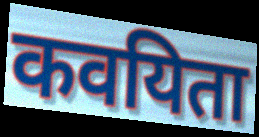
कवयिता